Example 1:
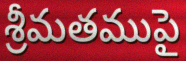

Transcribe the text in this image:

శ్రీమతముపై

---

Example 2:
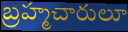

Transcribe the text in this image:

బ్రహ్మచారులూ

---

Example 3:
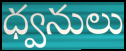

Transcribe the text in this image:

ధ్వనులు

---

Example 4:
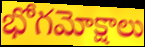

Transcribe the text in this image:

భోగమోక్షాలు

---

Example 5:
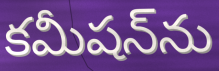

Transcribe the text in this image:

కమీషన్‌ను